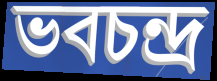
ভবচন্দ্র